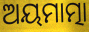
ଅୟମାତ୍ମା